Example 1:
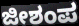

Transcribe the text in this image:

ಜೀಶಂಪ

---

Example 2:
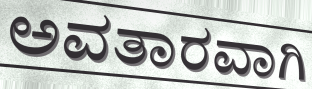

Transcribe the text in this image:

ಅವತಾರವಾಗಿ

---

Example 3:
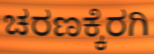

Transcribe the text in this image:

ಚರಣಕ್ಕೆರಗಿ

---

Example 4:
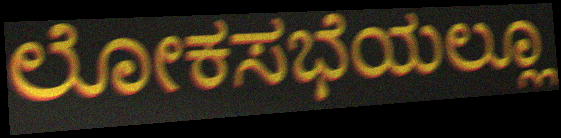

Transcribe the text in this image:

ಲೋಕಸಭೆಯಲ್ಲೂ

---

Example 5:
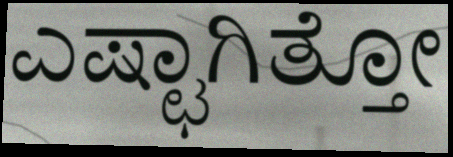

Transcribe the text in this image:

ಎಷ್ಟಾಗಿತ್ತೋ